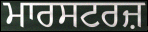
ਮਾਰਸਟਰਜ਼